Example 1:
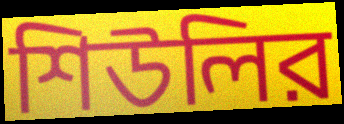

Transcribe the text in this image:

শিউলির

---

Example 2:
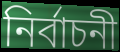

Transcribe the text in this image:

নির্বাচনী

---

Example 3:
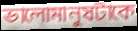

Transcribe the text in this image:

ভালোমানুষটাকে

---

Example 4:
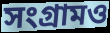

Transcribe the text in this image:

সংগ্রামও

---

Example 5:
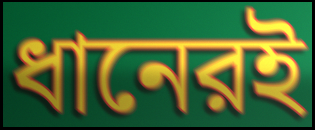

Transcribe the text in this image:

ধানেরই